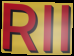
RII